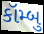
કૉમ્બુ